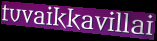
tuvaikkavillai